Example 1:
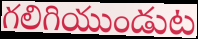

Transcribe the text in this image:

గలిగియుండుట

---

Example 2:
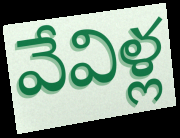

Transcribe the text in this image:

వేవిళ్ల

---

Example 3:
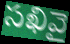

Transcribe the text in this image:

సఖివై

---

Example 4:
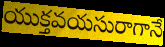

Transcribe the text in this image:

యుక్తవయసురాగానే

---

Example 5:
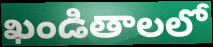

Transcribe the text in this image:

ఖండితాలలో